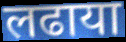
लढाया